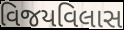
વિજયવિલાસ